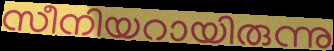
സീനിയറായിരുന്നു